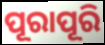
ପୂରାପୂରି